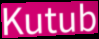
Kutub